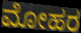
ಮೋಹರ